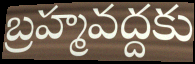
బ్రహ్మవద్దకు